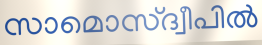
സാമൊസ്ദ്വീപിൽ